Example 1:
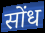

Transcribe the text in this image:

सोंध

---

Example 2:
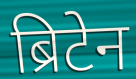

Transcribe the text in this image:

ब्रिटेन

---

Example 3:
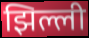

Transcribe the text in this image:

झिल्ली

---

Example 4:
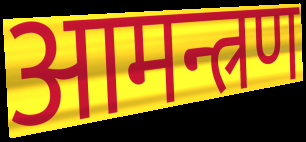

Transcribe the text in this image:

आमन्त्रण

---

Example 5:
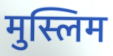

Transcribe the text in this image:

मुस्लिम